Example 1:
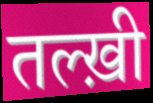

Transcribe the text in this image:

तल्ख़ी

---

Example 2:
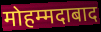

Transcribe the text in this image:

मोहम्मदाबाद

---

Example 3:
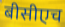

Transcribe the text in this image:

बीसीएच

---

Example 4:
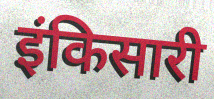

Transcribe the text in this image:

इंकिसारी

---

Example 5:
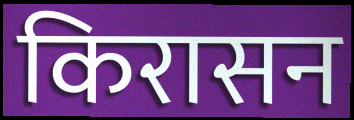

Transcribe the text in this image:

किरासन